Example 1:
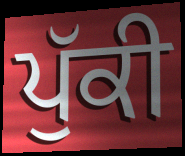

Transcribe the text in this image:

ਪੁੱਕੀ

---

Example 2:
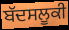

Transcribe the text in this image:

ਬੱਦਸਲੂਕੀ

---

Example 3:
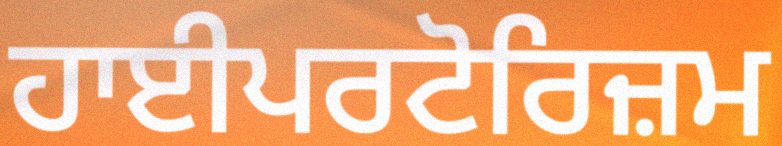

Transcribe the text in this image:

ਹਾਈਪਰਟੋਰਿਜ਼ਮ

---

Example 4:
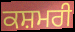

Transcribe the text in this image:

ਕਸ਼ਮਰੀ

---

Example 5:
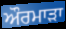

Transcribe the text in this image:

ਔਰਮਾੜਾ